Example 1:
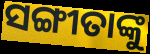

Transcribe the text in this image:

ସଙ୍ଗୀତାଙ୍କୁ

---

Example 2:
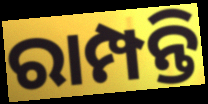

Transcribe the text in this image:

ରାମ୍ପନ୍ତି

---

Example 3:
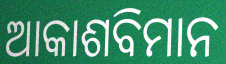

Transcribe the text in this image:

ଆକାଶବିମାନ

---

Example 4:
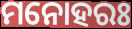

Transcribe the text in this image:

ମନୋହରଃ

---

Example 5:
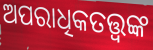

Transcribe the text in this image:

ଅପରାଧିକତତ୍ତ୍ୱଙ୍କ